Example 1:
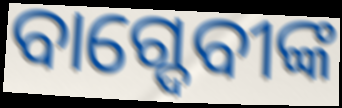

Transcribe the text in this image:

ବାଗ୍ଦେବୀଙ୍କ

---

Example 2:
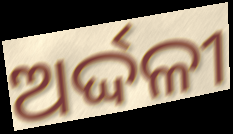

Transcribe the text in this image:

ଅର୍ଦ୍ଦଳୀ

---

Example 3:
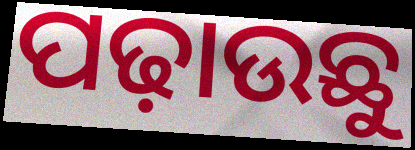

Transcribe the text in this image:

ପଢ଼ାଉଛୁ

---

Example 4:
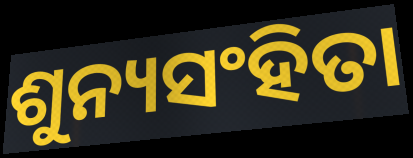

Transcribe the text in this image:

ଶୁନ୍ୟସଂହିତା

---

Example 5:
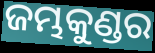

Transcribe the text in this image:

ଜମ୍ଭକୁଣ୍ଡର